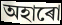
অহাৰো